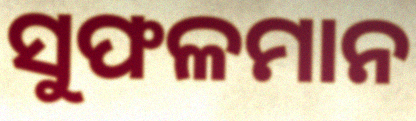
ସୁଫଳମାନ